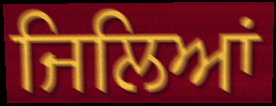
ਜਿਲਿਆਂ